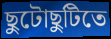
ছুটোছুটিতে